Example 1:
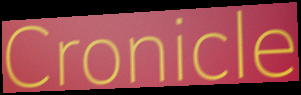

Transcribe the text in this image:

Cronicle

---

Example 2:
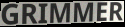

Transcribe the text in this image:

GRIMMER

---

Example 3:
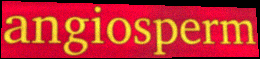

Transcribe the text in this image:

angiosperm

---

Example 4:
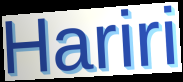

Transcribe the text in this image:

Hariri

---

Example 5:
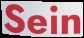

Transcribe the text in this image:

Sein